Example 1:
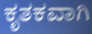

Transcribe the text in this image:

ಕೃತಕವಾಗಿ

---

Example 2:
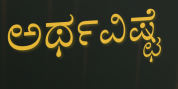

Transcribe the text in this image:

ಅರ್ಥವಿಷ್ಟೆ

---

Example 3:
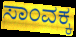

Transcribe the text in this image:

ಸಾಂವಕ್ಕ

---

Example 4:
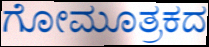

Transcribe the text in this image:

ಗೋಮೂತ್ರಕದ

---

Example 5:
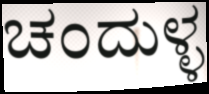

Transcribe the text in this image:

ಚಂದುಳ್ಳ